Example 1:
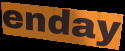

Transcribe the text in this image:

enday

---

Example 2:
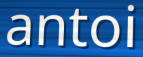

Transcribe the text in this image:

antoi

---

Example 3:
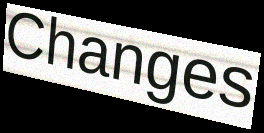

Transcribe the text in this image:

Changes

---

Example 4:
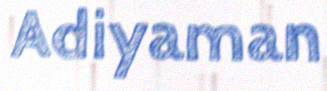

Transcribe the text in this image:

Adiyaman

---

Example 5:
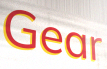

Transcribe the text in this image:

Gear